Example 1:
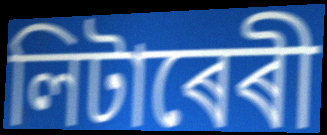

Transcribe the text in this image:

লিটাৰেৰী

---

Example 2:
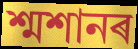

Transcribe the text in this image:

শ্মশানৰ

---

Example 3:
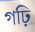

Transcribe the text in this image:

গঢ়ি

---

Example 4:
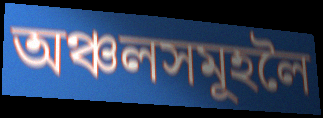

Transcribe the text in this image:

অঞ্চলসমূহলৈ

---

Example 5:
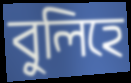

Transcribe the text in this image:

বুলিহে